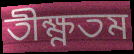
তীক্ষ্ণতম